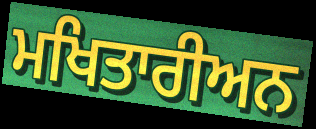
ਮਖਿਤਾਰੀਅਨ